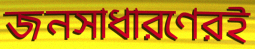
জনসাধারণেরই